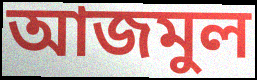
আজমুল